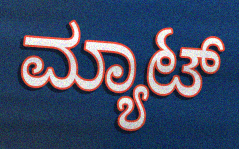
ಮ್ಯಾಟ್